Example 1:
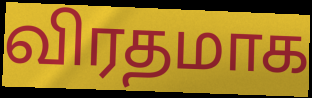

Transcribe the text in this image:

விரதமாக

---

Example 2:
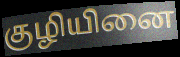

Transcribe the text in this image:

குழியினை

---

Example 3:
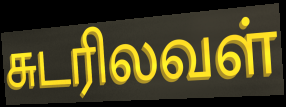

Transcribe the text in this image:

சுடரிலவள்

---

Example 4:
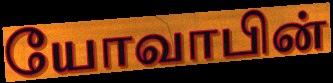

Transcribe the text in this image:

யோவாபின்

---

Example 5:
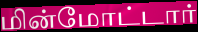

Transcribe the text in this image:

மின்மோட்டார்